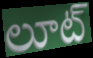
లూట్